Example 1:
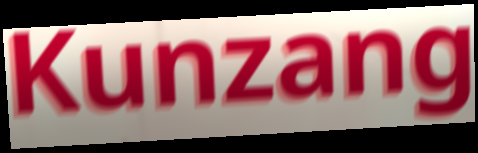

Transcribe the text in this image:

Kunzang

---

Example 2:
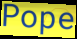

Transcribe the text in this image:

Pope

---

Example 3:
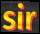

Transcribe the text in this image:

sir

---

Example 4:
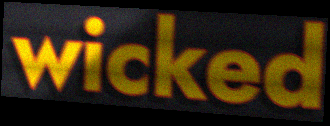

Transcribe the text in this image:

wicked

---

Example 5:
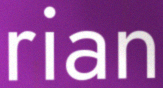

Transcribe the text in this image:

rian